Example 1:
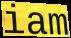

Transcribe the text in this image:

iam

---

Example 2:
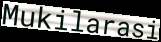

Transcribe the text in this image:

Mukilarasi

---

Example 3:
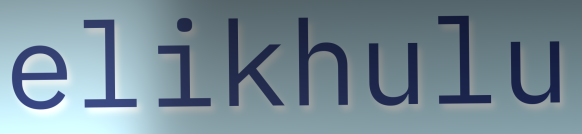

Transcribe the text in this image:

elikhulu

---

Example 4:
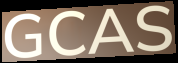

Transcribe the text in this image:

GCAS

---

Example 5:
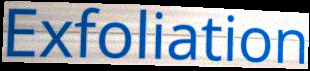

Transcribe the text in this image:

Exfoliation